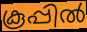
കൂപ്പിൽ